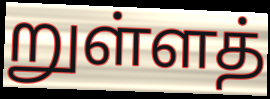
றுள்ளத்